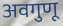
अवगुणू